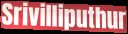
Srivilliputhur